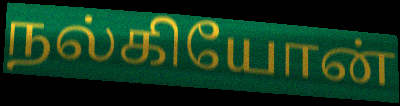
நல்கியோன்